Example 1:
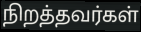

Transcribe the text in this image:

நிறத்தவர்கள்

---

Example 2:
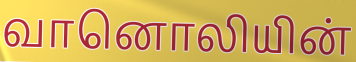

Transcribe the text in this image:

வானொலியின்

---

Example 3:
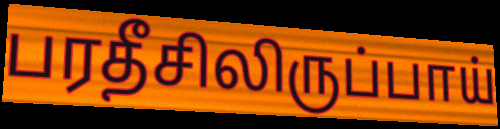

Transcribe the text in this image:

பரதீசிலிருப்பாய்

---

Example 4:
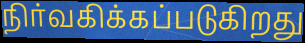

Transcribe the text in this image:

நிர்வகிக்கப்படுகிறது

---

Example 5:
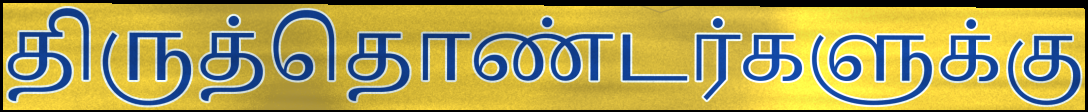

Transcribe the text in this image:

திருத்தொண்டர்களுக்கு